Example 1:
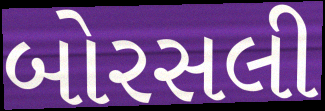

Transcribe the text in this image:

બોરસલી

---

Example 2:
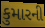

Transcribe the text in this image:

કુમારની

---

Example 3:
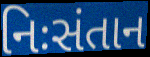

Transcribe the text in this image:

નિઃસંતાન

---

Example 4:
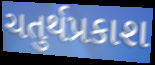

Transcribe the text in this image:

ચતુર્થપ્રકાશ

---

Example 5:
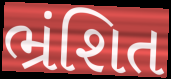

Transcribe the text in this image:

ભ્રંશિત